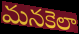
మనకెలా